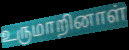
உருமாறினாள்